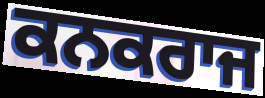
ਕਨਕਰਾਜ